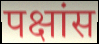
पक्षांस